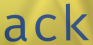
ack